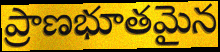
ప్రాణభూతమైన